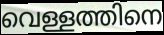
വെള്ളത്തിനെ